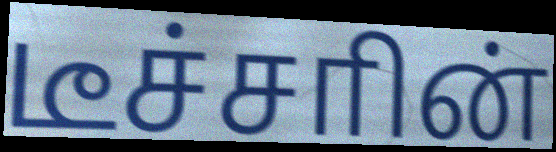
டீச்சரின்